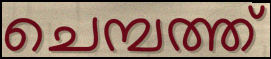
ചെമ്പത്ത്